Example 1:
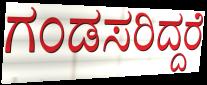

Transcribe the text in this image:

ಗಂಡಸರಿದ್ದರೆ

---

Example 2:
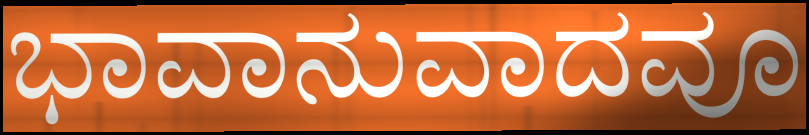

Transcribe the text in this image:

ಭಾವಾನುವಾದವೂ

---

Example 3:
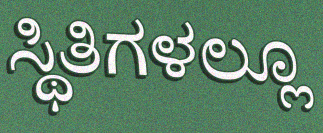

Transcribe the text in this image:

ಸ್ಥಿತಿಗಳಲ್ಲೂ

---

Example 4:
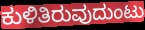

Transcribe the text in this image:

ಕುಳಿತಿರುವುದುಂಟು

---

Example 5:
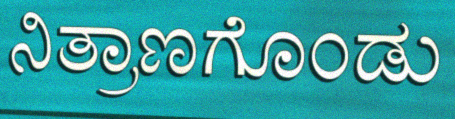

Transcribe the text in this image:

ನಿತ್ರಾಣಗೊಂಡು